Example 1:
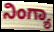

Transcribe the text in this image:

ನಿಂಗ್ಯಾ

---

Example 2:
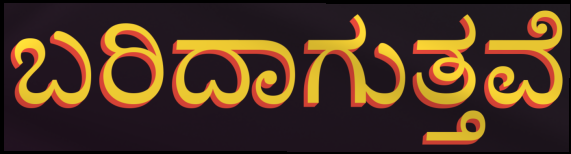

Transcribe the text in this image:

ಬರಿದಾಗುತ್ತವೆ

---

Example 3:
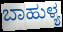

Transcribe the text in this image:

ಬಾಹುಳ್ಯ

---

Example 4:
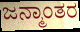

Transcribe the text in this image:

ಜನ್ಮಾಂತರ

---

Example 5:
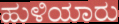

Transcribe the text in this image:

ಹುಳಿಯಾರು